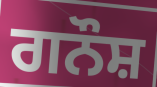
ਗਨੌਸ਼